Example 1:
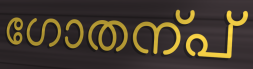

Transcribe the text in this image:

ഗോതന്പ്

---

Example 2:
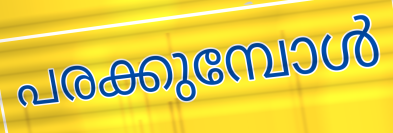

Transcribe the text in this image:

പരക്കുമ്പോൾ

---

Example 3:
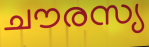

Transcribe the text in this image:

ചൗരസ്യ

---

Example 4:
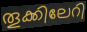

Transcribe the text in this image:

തൂക്കിലേറി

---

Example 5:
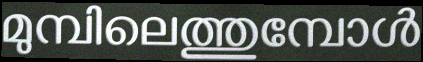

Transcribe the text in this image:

മുമ്പിലെത്തുമ്പോൾ